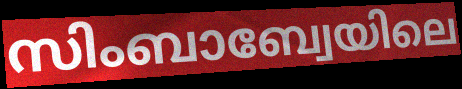
സിംബാബ്വേയിലെ